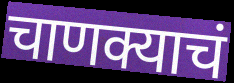
चाणक्याचं